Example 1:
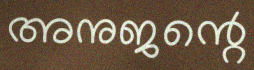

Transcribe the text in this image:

അനുജന്റെ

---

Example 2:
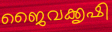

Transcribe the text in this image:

ജൈവക്കൃഷി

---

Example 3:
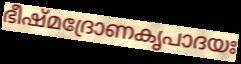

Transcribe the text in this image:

ഭീഷ്മദ്രോണകൃപാദയഃ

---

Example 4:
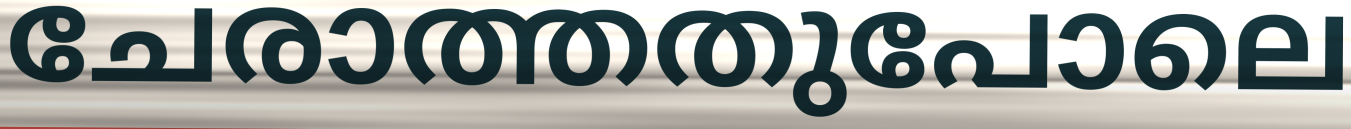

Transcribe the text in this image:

ചേരാത്തതുപോലെ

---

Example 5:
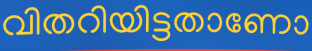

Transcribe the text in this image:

വിതറിയിട്ടതാണോ